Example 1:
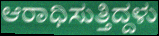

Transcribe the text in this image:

ಆರಾಧಿಸುತ್ತಿದ್ದಳು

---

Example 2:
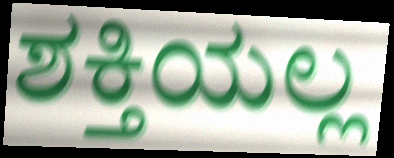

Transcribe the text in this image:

ಶಕ್ತಿಯಲ್ಲ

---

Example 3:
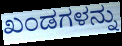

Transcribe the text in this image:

ಖಂಡಗಳನ್ನು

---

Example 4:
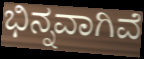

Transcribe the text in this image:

ಭಿನ್ನವಾಗಿವೆ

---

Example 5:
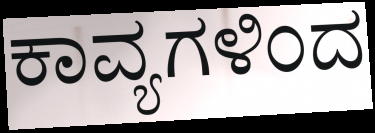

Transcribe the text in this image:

ಕಾವ್ಯಗಳಿಂದ